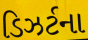
ડિઝર્ટના